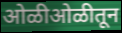
ओळीओळीतून